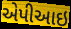
એપીઆઇ